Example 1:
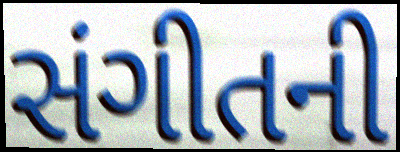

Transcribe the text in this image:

સંગીતની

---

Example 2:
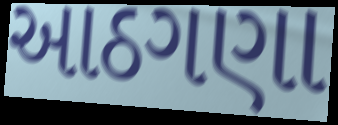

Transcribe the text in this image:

આઠગણા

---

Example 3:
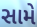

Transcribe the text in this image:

સામે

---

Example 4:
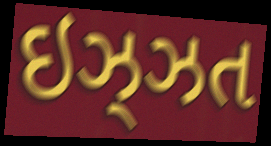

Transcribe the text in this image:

ઇઝ્ઝત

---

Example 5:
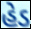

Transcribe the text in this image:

હેડ